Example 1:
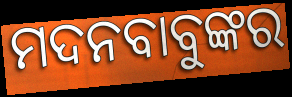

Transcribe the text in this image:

ମଦନବାବୁଙ୍କର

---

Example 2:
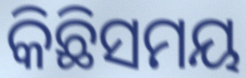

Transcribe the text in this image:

କିଛିସମୟ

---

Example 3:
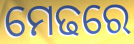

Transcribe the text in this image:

ମେଢରେ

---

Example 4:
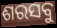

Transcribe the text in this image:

ଶରସବୁ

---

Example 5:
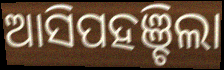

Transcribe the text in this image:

ଆସିପହଞ୍ଚିଲା